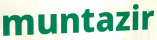
muntazir